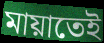
মায়াতেই